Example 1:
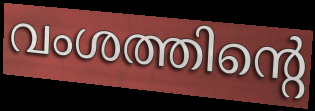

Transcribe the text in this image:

വംശത്തിന്റെ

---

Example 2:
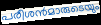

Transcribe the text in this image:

പരീശൻമാരുടെയും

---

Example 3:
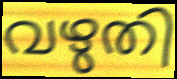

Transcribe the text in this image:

വഴുതി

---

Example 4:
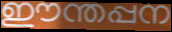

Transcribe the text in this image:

ഈന്തപ്പന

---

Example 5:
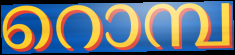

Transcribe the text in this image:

റൊമ്പ